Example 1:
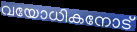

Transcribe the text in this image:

വയോധികനോട്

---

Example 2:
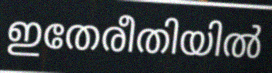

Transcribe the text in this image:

ഇതേരീതിയിൽ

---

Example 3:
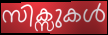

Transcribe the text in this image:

സിക്സുകൾ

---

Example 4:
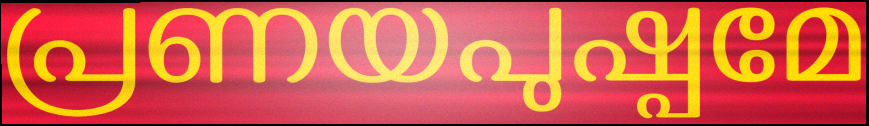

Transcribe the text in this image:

പ്രണയപുഷ്പമേ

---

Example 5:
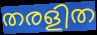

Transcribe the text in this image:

തരളിത